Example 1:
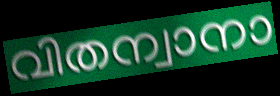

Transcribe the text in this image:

വിതന്വാനാ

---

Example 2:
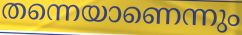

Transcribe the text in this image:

തന്നെയാണെന്നും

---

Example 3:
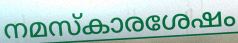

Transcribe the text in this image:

നമസ്കാരശേഷം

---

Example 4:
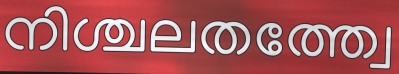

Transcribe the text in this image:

നിശ്ചലതത്ത്വേ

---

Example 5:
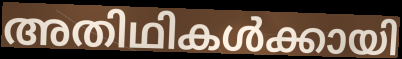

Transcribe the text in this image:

അതിഥികൾക്കായി